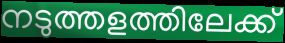
നടുത്തളത്തിലേക്ക്